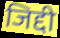
जिद्दी